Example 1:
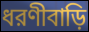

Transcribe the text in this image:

ধরণীবাড়ি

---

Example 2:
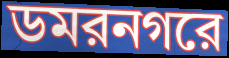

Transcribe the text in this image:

ডমরনগরে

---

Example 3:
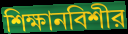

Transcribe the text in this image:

শিক্ষানবিশীর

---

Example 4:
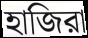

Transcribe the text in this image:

হাজিরা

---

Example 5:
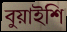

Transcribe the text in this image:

বুয়াইশি